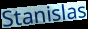
Stanislas